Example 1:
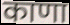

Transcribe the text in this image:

काणा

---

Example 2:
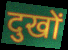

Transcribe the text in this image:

दुखों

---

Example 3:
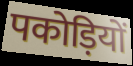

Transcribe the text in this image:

पकोड़ियों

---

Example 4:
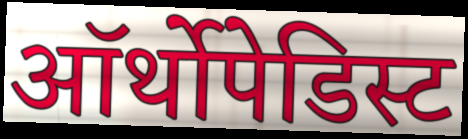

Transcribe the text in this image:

ऑर्थोपेडिस्ट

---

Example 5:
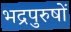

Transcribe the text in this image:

भद्रपुरुषों